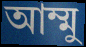
আম্মু